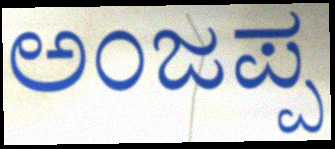
ಅಂಜಪ್ಪ